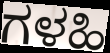
ಗಳಹಿ